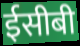
ईसीबी